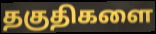
தகுதிகளை